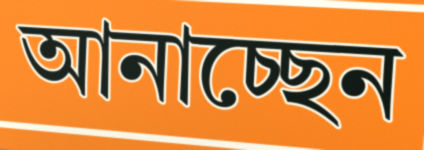
আনাচ্ছেন